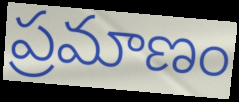
ప్రమాణం